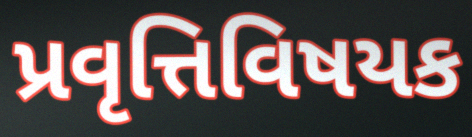
પ્રવૃત્તિવિષયક